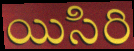
యిసిరి